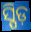
ସ୍ପିଡ଼